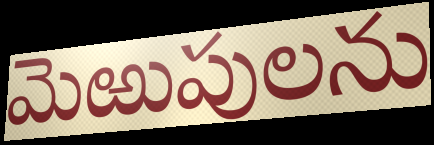
మెఱుపులను